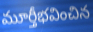
మూర్తీభవించిన